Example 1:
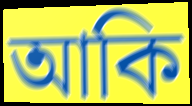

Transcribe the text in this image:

আকি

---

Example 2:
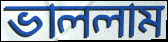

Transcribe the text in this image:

ভাললাম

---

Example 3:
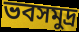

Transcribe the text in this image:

ভবসমুদ্র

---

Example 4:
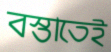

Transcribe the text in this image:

বস্তাতেই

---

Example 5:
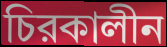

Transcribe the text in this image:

চিরকালীন